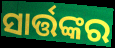
ସାର୍ତ୍ତଙ୍କର